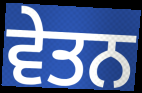
ਵੇਤਨ